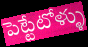
పెట్టేటోళ్ళు